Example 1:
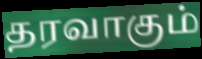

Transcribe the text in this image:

தரவாகும்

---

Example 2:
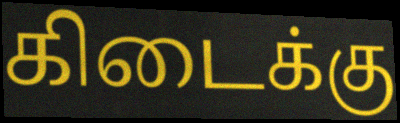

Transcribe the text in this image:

கிடைக்கு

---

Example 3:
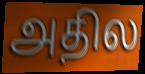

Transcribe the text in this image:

அதில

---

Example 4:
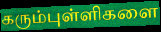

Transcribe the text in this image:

கரும்புள்ளிகளை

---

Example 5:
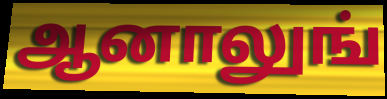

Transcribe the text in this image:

ஆனாலுங்